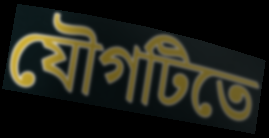
যৌগটিতে